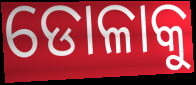
ଡୋଳାକୁ